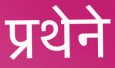
प्रथेने